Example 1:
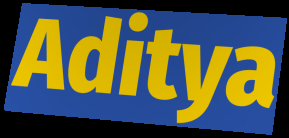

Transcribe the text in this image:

Aditya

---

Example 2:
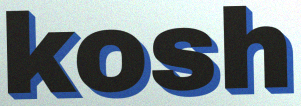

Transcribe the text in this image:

kosh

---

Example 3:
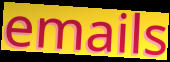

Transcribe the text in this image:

emails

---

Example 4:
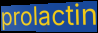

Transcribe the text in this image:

prolactin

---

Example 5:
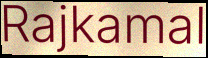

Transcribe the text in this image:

Rajkamal